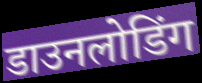
डाउनलोडिंग